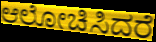
ಆಲೋಚಿಸಿದರೆ